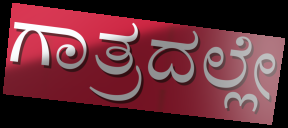
ಗಾತ್ರದಲ್ಲೇ